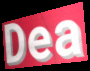
Dea